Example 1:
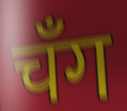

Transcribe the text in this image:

चँग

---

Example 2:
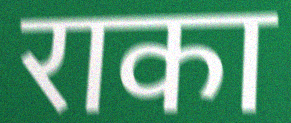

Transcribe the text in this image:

राका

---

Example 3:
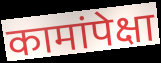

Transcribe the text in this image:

कामांपेक्षा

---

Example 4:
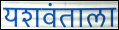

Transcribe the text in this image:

यशवंताला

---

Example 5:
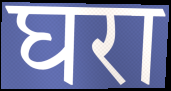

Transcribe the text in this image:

घरा